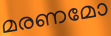
മരണമോ